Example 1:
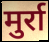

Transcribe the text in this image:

मुर्रा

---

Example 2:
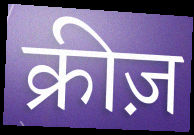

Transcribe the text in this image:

क्रीज़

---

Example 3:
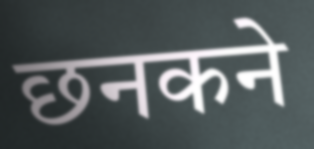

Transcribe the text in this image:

छनकने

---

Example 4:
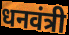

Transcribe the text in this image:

धनवंत्री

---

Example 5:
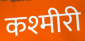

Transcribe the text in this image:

कश्‍मीरी